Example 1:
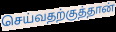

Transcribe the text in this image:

செய்வதற்குத்தான்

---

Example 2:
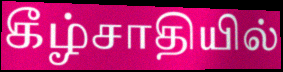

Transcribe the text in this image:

கீழ்சாதியில்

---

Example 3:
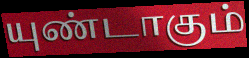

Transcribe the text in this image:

யுண்டாகும்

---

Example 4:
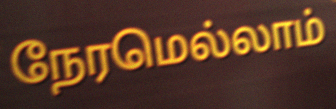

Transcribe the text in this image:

நேரமெல்லாம்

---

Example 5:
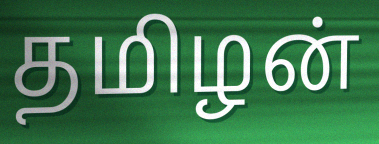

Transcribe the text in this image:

தமிழன்